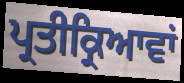
ਪ੍ਰਤੀਕ੍ਰਿਆਵਾਂ